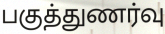
பகுத்துணர்வு